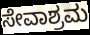
ಸೇವಾಶ್ರಮ